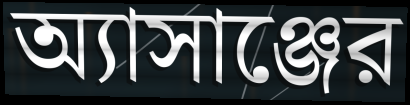
অ্যাসাঞ্জের